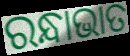
ରନ୍ଧାଭାତ